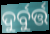
ଦୁର୍ବୁର୍ତ୍ତ